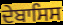
ਦੇਬਾਸਿਸ